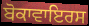
ਬੋਕਾਵਾਇਰਸ